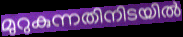
മുറുകുന്നതിനിടയിൽ